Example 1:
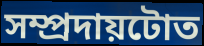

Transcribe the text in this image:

সম্প্ৰদায়টোত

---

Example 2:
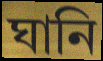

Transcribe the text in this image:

ঘানি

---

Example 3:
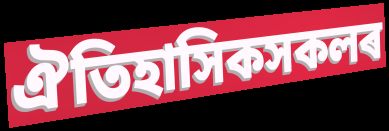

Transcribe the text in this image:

ঐতিহাসিকসকলৰ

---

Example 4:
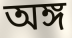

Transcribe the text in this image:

অঙ্গ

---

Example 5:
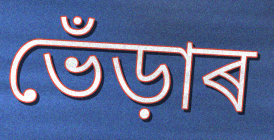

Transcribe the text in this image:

ভেঁড়াৰ